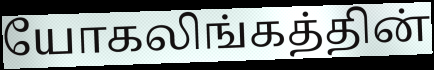
யோகலிங்கத்தின்